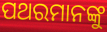
ପଥରମାନଙ୍କୁ